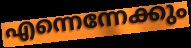
എന്നെന്നേക്കും